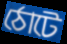
ঠোটে